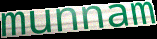
munnam